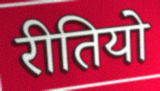
रीतियो